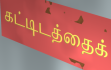
கட்டிடத்தைக்